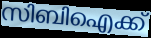
സിബിഐക്ക്